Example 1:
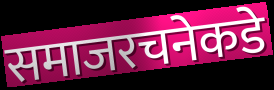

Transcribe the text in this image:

समाजरचनेकडे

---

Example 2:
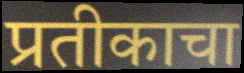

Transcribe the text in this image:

प्रतीकाचा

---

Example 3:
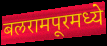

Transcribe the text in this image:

बलरामपूरमध्ये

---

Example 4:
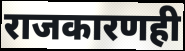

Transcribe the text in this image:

राजकारणही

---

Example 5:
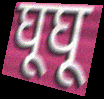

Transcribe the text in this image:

घूघू